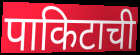
पाकिटाची